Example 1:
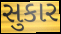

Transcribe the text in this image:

સુકાર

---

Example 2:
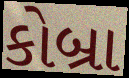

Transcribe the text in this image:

કોબ્રા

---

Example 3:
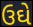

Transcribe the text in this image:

ઉઘે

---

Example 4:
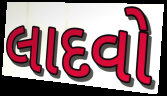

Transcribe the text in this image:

લાદવો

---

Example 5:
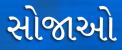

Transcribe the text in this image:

સોજાઓ